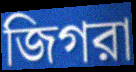
জিগরা